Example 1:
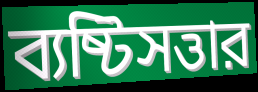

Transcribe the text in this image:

ব্যষ্টিসত্তার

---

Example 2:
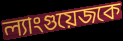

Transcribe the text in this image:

ল্যাংগুয়েজকে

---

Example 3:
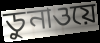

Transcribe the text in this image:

ডুনাওয়ে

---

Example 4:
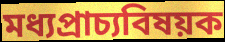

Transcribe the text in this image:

মধ্যপ্রাচ্যবিষয়ক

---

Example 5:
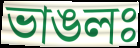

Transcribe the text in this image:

ভাঙলঃ